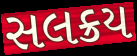
સલક્રય